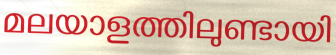
മലയാളത്തിലുണ്ടായി